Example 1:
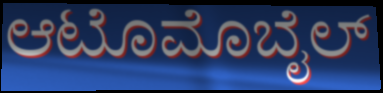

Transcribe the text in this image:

ಆಟೊಮೊಬೈಲ್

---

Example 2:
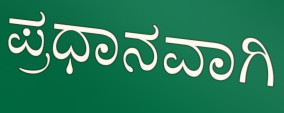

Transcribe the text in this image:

ಪ್ರಧಾನವಾಗಿ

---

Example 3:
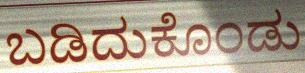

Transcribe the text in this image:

ಬಡಿದುಕೊಂಡು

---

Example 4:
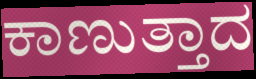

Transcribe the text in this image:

ಕಾಣುತ್ತಾದ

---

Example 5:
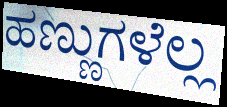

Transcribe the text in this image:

ಹಣ್ಣುಗಳೆಲ್ಲ